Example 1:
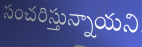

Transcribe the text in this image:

సంచరిస్తున్నాయని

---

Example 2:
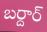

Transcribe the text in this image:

బర్దార్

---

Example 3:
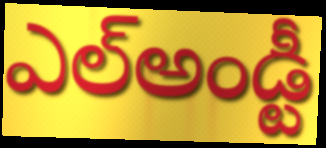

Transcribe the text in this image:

ఎల్అండ్టీ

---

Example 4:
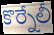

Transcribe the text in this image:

కొర్నేలీ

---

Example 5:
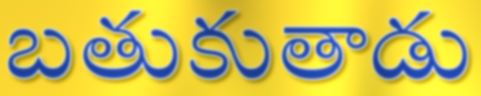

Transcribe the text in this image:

బతుకుతాడు